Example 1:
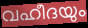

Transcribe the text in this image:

വഹീദയും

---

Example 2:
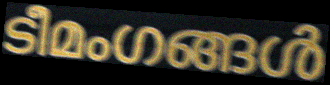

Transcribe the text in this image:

ടീമംഗങ്ങൾ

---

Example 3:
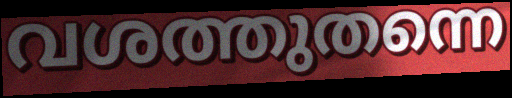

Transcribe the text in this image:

വശത്തുതന്നെ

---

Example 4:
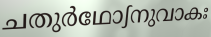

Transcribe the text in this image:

ചതുർഥോഽനുവാകഃ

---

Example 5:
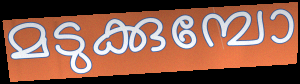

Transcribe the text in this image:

മടുക്കുമ്പോ